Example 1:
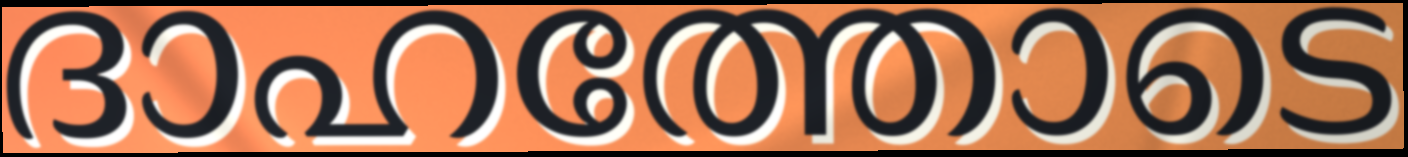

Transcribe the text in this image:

ദാഹത്തോടെ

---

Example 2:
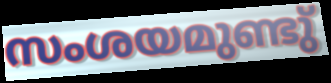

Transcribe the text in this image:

സംശയമുണ്ടു്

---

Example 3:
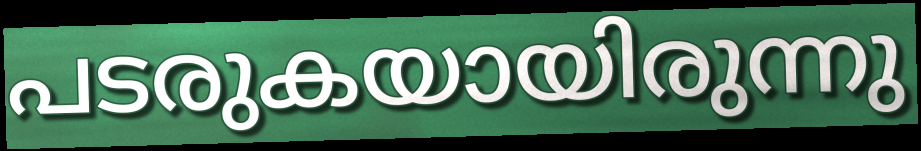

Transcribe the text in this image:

പടരുകയായിരുന്നു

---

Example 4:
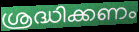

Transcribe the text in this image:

ശ്രദ്ധിക്കണം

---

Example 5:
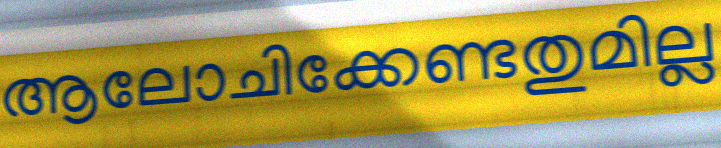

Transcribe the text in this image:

ആലോചിക്കേണ്ടതുമില്ല